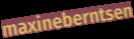
maxineberntsen